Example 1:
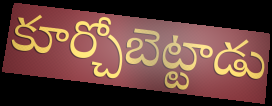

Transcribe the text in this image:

కూర్చోబెట్టాడు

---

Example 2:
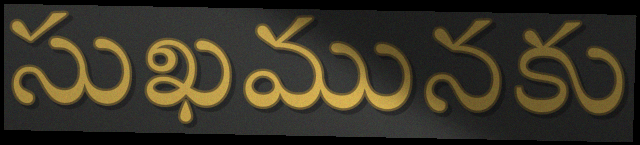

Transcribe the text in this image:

సుఖమునకు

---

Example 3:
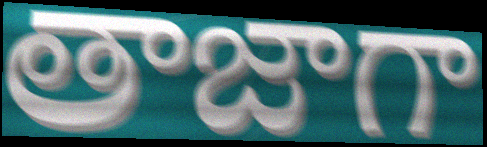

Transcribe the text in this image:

తాజాగా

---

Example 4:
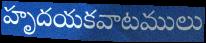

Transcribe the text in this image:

హృదయకవాటములు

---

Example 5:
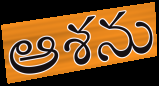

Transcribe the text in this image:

ఆశను